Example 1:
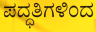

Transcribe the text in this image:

ಪದ್ಧತಿಗಳಿಂದ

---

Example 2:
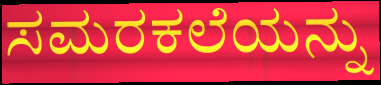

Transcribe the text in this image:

ಸಮರಕಲೆಯನ್ನು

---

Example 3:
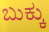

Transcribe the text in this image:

ಬುಕ್ಕು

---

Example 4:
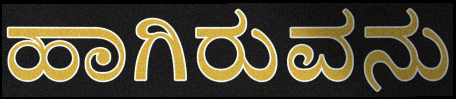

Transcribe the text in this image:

ಹಾಗಿರುವನು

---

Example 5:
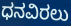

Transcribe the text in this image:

ಧನವಿರಲು